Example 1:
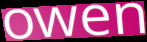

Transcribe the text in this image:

owen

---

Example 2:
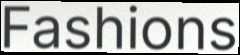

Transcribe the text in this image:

Fashions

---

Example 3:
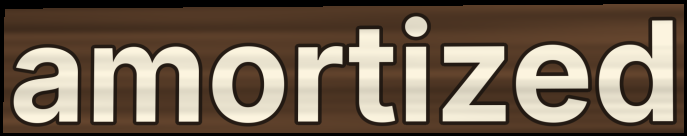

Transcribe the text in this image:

amortized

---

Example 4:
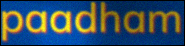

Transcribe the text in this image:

paadham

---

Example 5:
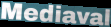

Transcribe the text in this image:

Mediaval